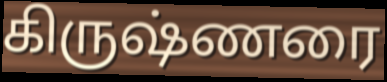
கிருஷ்ணரை